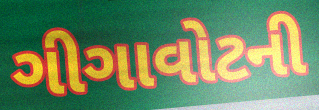
ગીગાવોટની